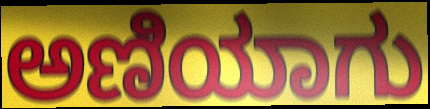
ಅಣಿಯಾಗು